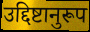
उद्दिष्टानुरूप